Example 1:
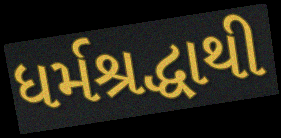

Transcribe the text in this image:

ધર્મશ્રદ્ધાથી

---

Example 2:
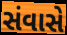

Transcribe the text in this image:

સંવાસે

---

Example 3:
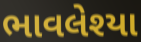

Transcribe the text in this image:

ભાવલેશ્યા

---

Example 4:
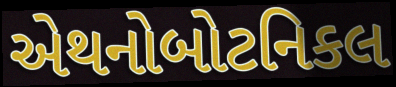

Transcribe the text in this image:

એથનોબોટનિકલ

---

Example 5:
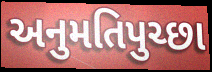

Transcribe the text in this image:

અનુમતિપુચ્છા